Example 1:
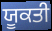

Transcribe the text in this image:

ਯੂਕਤੀ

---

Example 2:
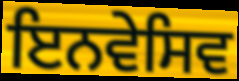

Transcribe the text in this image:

ਇਨਵੇਸਿਵ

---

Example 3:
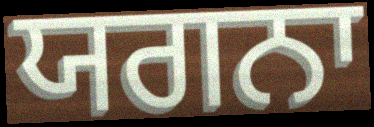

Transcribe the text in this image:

ਯਗਨਾ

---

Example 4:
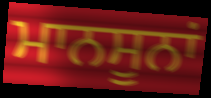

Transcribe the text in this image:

ਮਾਨਸੂਨਾਂ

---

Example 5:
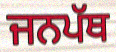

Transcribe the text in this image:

ਜਨਪੱਥ